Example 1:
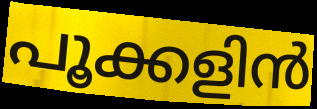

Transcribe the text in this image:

പൂക്കളിൻ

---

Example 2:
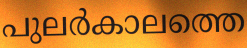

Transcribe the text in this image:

പുലർകാലത്തെ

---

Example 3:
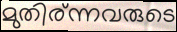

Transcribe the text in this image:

മുതിര്ന്നവരുടെ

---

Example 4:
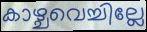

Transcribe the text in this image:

കാഴ്ചവെച്ചില്ലേ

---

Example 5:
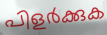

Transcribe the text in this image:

പിളർക്കുക